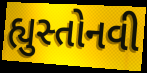
હ્યુસ્તોનવી